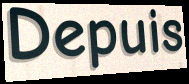
Depuis